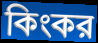
কিংকর